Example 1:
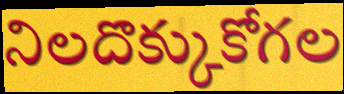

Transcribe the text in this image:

నిలదొక్కుకోగల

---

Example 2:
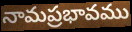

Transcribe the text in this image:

నామప్రభావము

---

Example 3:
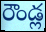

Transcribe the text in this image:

రౌండ్ల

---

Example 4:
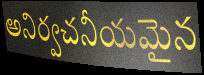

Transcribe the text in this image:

అనిర్వచనీయమైన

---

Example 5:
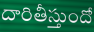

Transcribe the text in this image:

దారితీస్తుందో